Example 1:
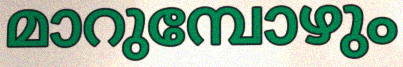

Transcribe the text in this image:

മാറുമ്പോഴും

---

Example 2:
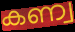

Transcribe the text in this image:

കണ്വ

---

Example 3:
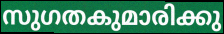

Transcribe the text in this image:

സുഗതകുമാരിക്കു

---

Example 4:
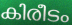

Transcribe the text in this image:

കിരീടം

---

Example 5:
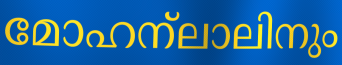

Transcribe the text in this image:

മോഹന്ലാലിനും